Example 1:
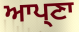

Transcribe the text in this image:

ਆਪ੍ਣਾ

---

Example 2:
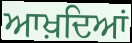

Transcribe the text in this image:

ਆਖ਼ਦਿਆਂ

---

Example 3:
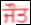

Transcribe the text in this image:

ਜੌਤ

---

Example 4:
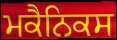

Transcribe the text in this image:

ਮਕੈਨਿਕਸ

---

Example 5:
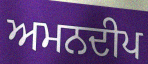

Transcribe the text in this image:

ਅਮਨਦੀਪ